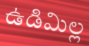
ఉడిమిల్ల